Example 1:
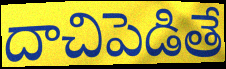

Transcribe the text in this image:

దాచిపెడితే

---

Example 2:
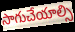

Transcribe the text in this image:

సాగుచేయాల్సి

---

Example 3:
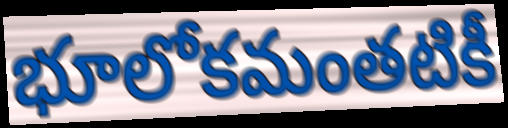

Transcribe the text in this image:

భూలోకమంతటికీ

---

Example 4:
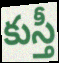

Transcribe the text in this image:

కుస్తీ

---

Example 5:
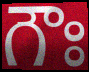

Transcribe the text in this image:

గౌః